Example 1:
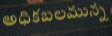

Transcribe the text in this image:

అధికబలమున్న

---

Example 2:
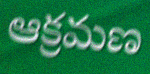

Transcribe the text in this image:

ఆక్రమణ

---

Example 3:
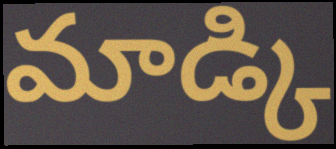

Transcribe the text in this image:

మాడ్కి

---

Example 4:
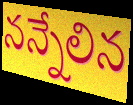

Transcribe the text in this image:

నన్నేలిన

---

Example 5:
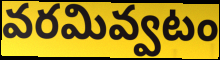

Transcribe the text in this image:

వరమివ్వటం